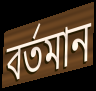
বর্তমান